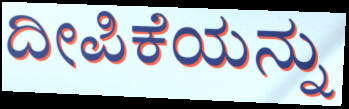
ದೀಪಿಕೆಯನ್ನು